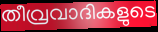
തീവ്രവാദികളുടെ